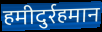
हमीदुर्रहमान